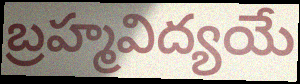
బ్రహ్మవిద్యయే